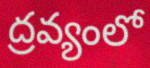
ద్రవ్యంలో